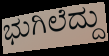
ಭುಗಿಲೆದ್ದು